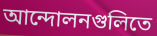
আন্দোলনগুলিতে